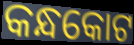
କନ୍ଧକୋଟ